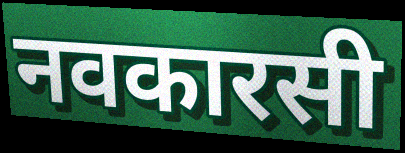
नवकारसी